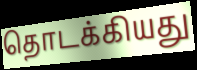
தொடக்கியது